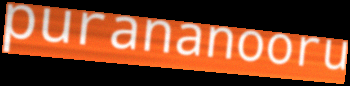
purananooru